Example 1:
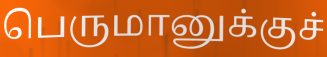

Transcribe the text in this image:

பெருமானுக்குச்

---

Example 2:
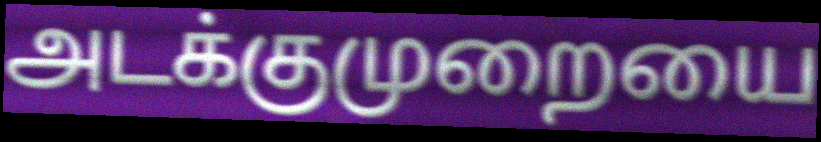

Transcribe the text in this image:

அடக்குமுறையை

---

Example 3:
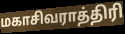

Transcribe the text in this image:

மகாசிவராத்திரி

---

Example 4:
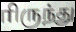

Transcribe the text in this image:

ரிருந்து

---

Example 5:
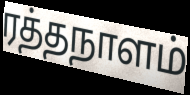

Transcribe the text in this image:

ரத்தநாளம்